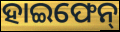
ହାଇଫେନ୍